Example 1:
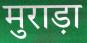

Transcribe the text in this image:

मुराड़ा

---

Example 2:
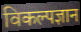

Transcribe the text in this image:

विकल्पज्ञान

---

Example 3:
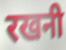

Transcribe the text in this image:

रखनी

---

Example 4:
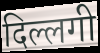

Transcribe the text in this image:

दिल्‍लगी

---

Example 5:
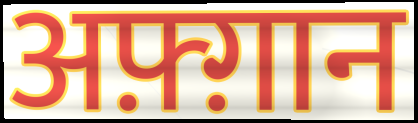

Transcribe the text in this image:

अफ़्ग़ान